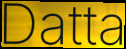
Datta